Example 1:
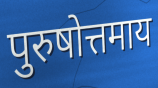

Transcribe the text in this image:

पुरुषोत्तमाय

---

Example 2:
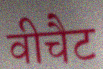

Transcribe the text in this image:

वीचैट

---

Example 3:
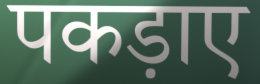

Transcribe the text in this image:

पकड़ाए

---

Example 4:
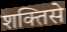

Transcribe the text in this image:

शक्तिसे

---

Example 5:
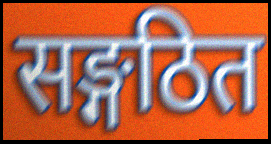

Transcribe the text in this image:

सङ्गठित